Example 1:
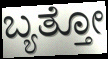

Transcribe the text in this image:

ಬ್ಯತ್ತೋ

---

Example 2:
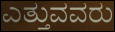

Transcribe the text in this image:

ಎತ್ತುವವರು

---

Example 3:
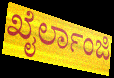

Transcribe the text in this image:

ಖೈರ್ಲಾಂಜಿ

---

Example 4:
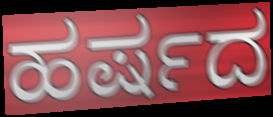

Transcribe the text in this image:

ಹರ್ಷದ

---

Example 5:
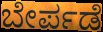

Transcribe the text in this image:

ಬೇರ್ಪಡೆ